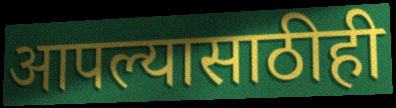
आपल्यासाठीही